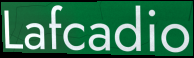
Lafcadio